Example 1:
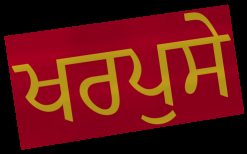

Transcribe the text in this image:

ਖਰਪੁਸੇ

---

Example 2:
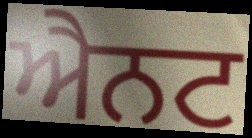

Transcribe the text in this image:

ਐਨਟ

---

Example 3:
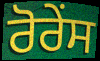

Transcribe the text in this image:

ਰੋਰੇਂਸ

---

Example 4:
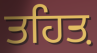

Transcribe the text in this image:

ਤਹਿਤ਼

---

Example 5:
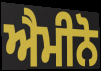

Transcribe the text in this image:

ਐਮੀਨੋ